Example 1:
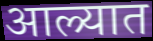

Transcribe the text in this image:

आल्यात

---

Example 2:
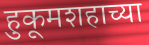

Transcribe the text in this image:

हुकूमशहाच्या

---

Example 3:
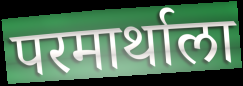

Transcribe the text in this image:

परमार्थाला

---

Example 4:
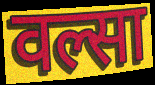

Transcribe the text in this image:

वल्सा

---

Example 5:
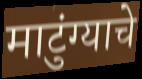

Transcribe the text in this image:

माटुंग्याचे